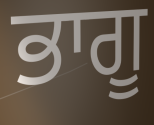
ਭਾਗੂ